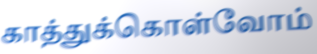
காத்துக்கொள்வோம்